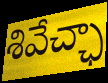
శివేచ్ఛా